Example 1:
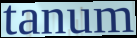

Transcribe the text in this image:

tanum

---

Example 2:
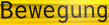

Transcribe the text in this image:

Bewegung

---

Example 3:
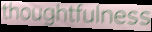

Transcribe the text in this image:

thoughtfulness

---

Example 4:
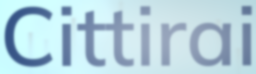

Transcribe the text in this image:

Cittirai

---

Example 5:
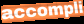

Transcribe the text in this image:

accompli